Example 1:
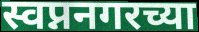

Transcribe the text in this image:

स्वप्ननगरच्या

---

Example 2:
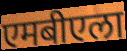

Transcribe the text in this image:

एमबीएला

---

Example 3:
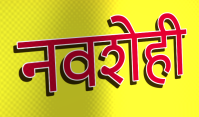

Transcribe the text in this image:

नवशेही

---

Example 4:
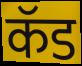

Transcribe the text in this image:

कॅड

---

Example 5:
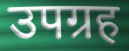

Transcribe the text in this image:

उपग्रह